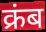
क्रंब